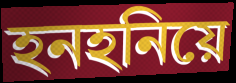
হনহনিয়ে